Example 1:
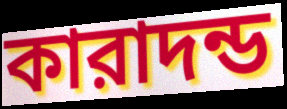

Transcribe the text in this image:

কারাদন্ড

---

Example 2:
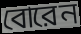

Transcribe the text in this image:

বোরেন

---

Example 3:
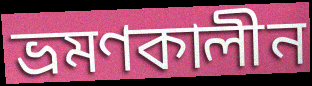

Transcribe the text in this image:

ভ্রমণকালীন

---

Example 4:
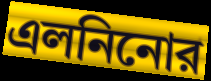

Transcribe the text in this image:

এলনিনোর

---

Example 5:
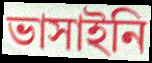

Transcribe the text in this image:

ভাসাইনি